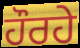
ਹੌਰਹੇ